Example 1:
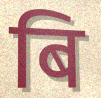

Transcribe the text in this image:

बि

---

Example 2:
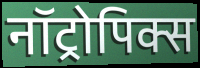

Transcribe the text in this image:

नॉट्रोपिक्स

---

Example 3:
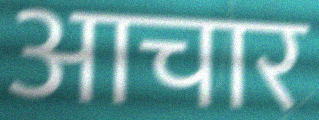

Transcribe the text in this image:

आचार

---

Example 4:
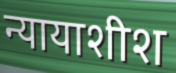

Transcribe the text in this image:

न्यायाशीश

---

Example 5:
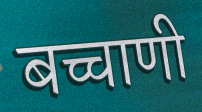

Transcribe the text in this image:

बच्चाणी